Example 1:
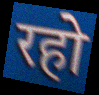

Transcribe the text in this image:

रहो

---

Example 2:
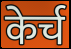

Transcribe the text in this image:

केर्च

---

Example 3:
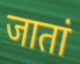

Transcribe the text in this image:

जातां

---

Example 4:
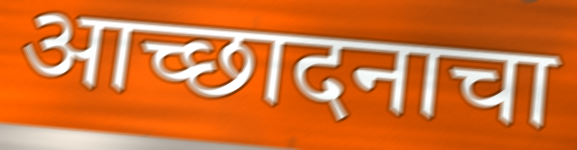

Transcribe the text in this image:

आच्छादनाचा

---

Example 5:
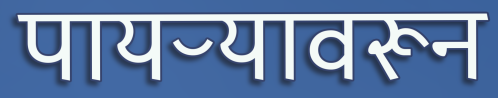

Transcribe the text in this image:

पायऱ्यावरून